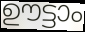
ഊട്ടാം